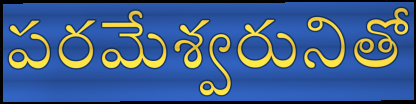
పరమేశ్వరునితో